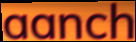
aanch